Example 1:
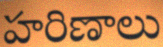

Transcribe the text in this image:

హరిణాలు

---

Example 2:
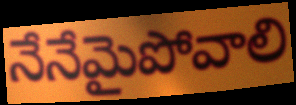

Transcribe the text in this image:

నేనేమైపోవాలి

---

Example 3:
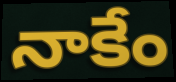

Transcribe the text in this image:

నాకేం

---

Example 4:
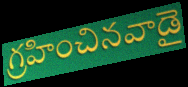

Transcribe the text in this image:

గ్రహించినవాడై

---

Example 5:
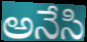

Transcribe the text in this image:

అనేసి